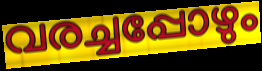
വരച്ചപ്പോഴും